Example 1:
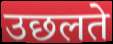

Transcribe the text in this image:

उछलते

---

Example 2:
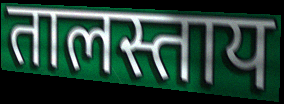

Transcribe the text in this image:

तालस्ताय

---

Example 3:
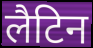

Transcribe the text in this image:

लैटिन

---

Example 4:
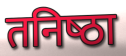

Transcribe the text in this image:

तनिष्‍ठा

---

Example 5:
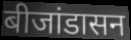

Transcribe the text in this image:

बीजांडासन